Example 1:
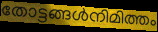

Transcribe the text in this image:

തോട്ടങ്ങൾനിമിത്തം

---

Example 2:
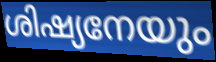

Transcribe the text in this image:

ശിഷ്യനേയും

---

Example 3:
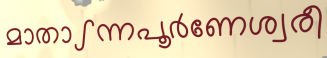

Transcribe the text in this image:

മാതാഽന്നപൂർണേശ്വരീ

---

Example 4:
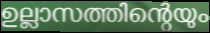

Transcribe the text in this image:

ഉല്ലാസത്തിന്റെയും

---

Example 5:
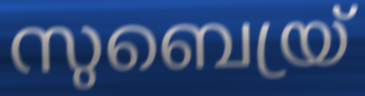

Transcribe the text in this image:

സുബെയ്ര്